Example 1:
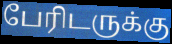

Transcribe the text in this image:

பேரிடருக்கு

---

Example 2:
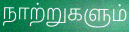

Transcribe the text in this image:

நாற்றுகளும்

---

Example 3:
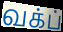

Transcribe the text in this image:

வக்ப்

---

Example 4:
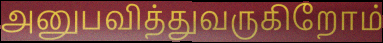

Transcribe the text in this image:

அனுபவித்துவருகிறோம்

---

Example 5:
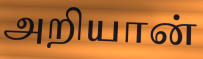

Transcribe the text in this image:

அறியான்